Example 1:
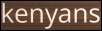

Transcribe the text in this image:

kenyans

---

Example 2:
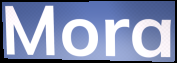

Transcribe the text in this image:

Mora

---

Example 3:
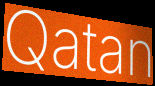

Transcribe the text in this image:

Qatan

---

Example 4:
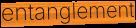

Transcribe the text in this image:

entanglement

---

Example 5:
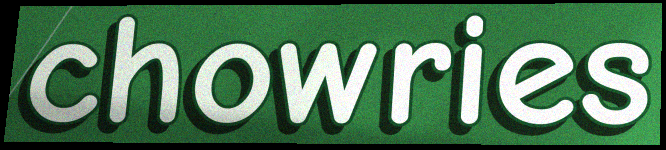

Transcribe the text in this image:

chowries